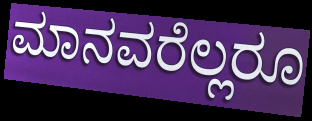
ಮಾನವರೆಲ್ಲರೂ